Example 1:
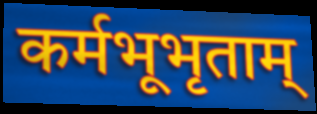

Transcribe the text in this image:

कर्मभूभृताम्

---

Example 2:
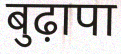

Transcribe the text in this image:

बुढ़ापा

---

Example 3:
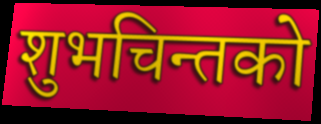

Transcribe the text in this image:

शुभचिन्तको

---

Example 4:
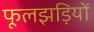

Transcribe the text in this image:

फूलझड़ियों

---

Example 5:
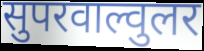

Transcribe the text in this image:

सुपरवाल्वुलर